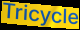
Tricycle